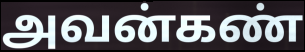
அவன்கண்